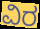
ವಿರ